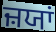
ਜ਼ਯਾਂ